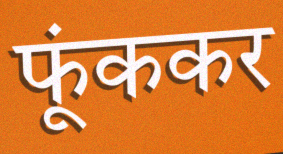
फूंककर